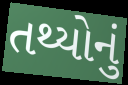
તથ્યોનું